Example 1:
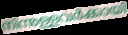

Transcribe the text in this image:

നിന്നുള്ളവർക്കായി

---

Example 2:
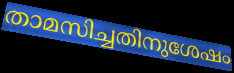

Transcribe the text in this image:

താമസിച്ചതിനുശേഷം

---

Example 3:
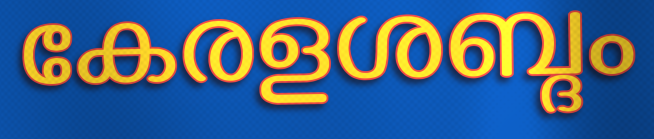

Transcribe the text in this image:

കേരളശബ്ദം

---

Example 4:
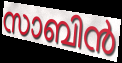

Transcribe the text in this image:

സാബിൻ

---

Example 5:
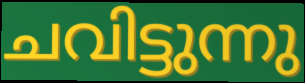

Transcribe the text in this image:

ചവിട്ടുന്നു